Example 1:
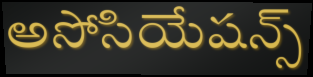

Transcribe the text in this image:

అసోసియేషన్స్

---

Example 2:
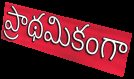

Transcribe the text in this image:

ప్రాథమికంగా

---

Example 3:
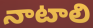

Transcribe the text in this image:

నాటాలి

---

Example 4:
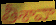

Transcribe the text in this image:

తీశావా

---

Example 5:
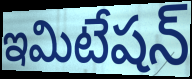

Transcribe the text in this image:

ఇమిటేషన్